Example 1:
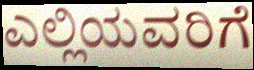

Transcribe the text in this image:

ಎಲ್ಲಿಯವರಿಗೆ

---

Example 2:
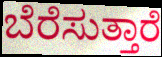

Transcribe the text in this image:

ಬೆರೆಸುತ್ತಾರೆ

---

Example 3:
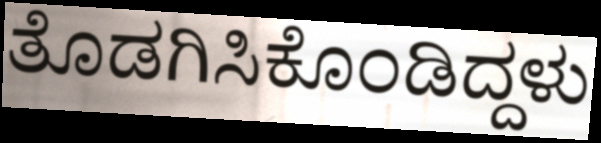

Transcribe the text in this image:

ತೊಡಗಿಸಿಕೊಂಡಿದ್ದಳು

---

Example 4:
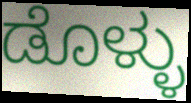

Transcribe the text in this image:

ಡೊಳ್ಳು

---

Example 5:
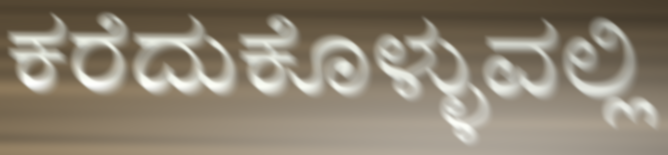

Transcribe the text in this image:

ಕರೆದುಕೊಳ್ಳುವಲ್ಲಿ